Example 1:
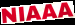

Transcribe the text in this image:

NIAAA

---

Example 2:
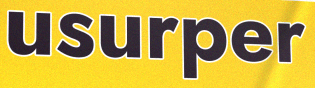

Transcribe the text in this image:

usurper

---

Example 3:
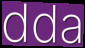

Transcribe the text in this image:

dda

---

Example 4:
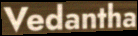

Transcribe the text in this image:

Vedantha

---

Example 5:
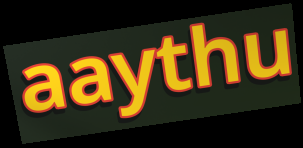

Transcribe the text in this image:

aaythu